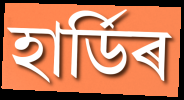
হাৰ্ডিৰ